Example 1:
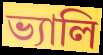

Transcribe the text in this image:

ভ্যালি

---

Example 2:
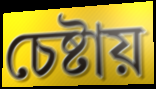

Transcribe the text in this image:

চেষ্টায়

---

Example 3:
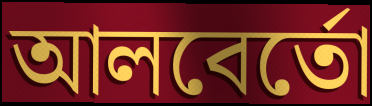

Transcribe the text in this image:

আলবের্তো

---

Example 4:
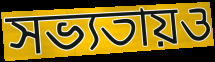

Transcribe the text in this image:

সভ্যতায়ও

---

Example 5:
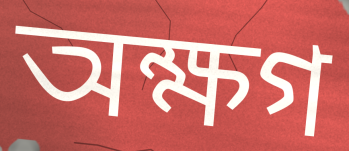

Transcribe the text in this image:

অক্ষগ